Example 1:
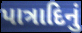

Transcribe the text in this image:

પાત્રાદિનું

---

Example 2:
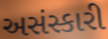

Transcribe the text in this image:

અસંસ્કારી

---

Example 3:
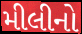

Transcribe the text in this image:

મીલીનો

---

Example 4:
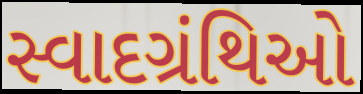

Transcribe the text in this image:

સ્વાદગ્રંથિઓ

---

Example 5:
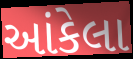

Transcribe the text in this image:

આંકેલા